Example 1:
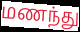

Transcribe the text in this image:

மணந்து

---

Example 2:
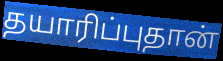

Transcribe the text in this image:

தயாரிப்புதான்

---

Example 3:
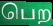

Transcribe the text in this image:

பெற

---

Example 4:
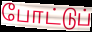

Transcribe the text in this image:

போட்டுப்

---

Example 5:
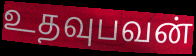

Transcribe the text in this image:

உதவுபவன்